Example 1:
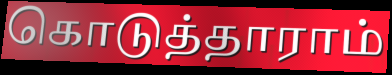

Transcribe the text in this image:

கொடுத்தாராம்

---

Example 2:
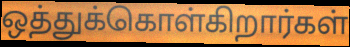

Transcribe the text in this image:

ஒத்துக்கொள்கிறார்கள்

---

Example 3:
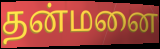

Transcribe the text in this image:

தன்மனை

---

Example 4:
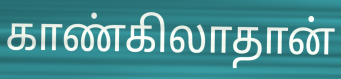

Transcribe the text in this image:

காண்கிலாதான்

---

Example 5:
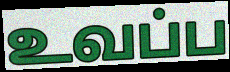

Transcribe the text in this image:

உவப்ப